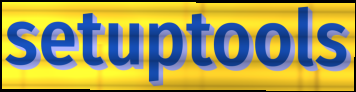
setuptools